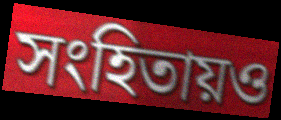
সংহিতায়ও